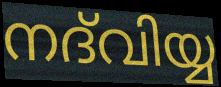
നദ്‌വിയ്യ